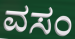
ವಸಂ